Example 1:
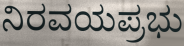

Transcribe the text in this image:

ನಿರವಯಪ್ರಭು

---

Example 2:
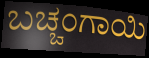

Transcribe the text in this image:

ಬಚ್ಚಂಗಾಯಿ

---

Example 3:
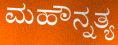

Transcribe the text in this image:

ಮಹೌನ್ನತ್ಯ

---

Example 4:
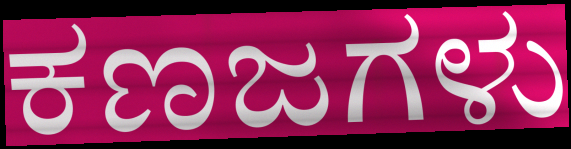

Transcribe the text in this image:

ಕಣಜಗಳು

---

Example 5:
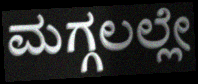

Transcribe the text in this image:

ಮಗ್ಗಲಲ್ಲೇ